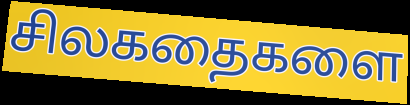
சிலகதைகளை